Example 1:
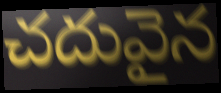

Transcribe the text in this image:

చదువైన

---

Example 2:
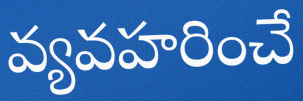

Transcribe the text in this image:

వ్యవహరించే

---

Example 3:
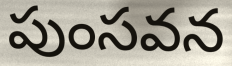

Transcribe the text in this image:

పుంసవన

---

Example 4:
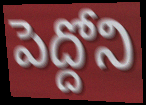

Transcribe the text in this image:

పెద్దోని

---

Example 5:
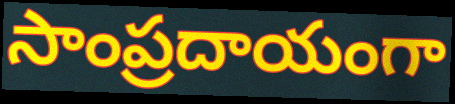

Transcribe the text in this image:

సాంప్రదాయంగా